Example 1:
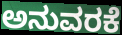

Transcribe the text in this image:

ಅನುವರಕೆ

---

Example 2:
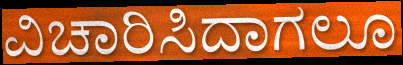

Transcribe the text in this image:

ವಿಚಾರಿಸಿದಾಗಲೂ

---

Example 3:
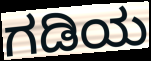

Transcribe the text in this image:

ಗಡಿಯ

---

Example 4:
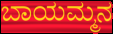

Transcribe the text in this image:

ಬಾಯಮ್ಮನ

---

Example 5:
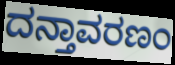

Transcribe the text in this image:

ದನ್ತಾವರಣಂ